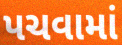
પચવામાં